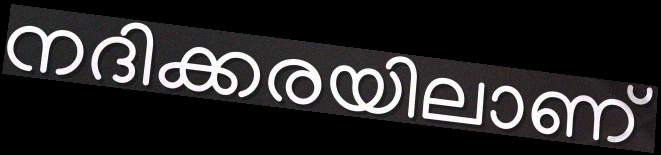
നദിക്കരയിലാണ്